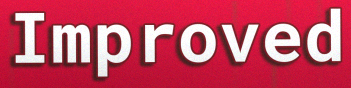
Improved